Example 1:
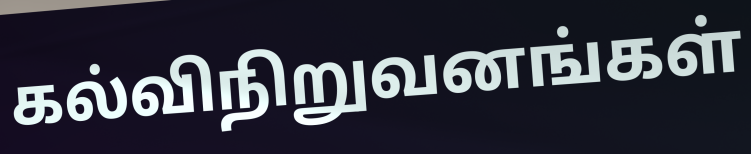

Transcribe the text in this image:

கல்விநிறுவனங்கள்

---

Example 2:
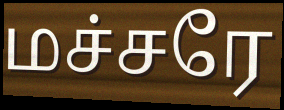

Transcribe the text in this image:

மச்சரே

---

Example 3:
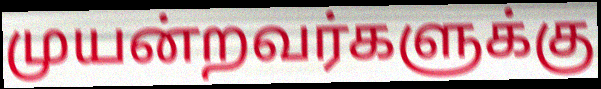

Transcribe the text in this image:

முயன்றவர்களுக்கு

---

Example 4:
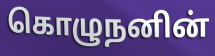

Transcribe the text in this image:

கொழுநனின்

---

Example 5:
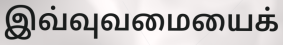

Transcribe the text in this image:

இவ்வுவமையைக்